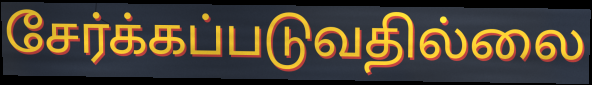
சேர்க்கப்படுவதில்லை